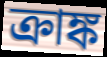
ক্রাঙ্ক